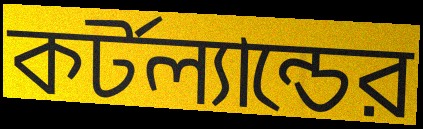
কর্টল্যান্ডের